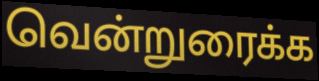
வென்றுரைக்க